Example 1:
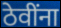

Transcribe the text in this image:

ठेवींना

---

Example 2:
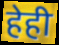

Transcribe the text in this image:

हेही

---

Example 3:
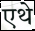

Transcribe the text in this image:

एथे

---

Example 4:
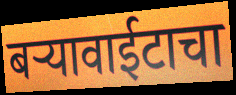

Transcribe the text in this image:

बऱ्यावाईटाचा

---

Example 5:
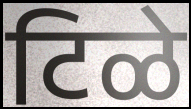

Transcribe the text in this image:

टिळे